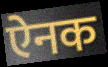
ऐनक